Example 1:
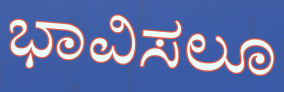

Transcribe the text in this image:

ಭಾವಿಸಲೂ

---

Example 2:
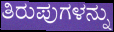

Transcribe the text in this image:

ತಿರುಪುಗಳನ್ನು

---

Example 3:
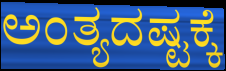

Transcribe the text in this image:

ಅಂತ್ಯದಷ್ಟಕ್ಕೆ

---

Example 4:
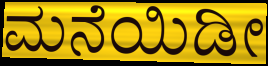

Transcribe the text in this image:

ಮನೆಯಿಡೀ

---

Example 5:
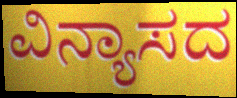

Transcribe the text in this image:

ವಿನ್ಯಾಸದ